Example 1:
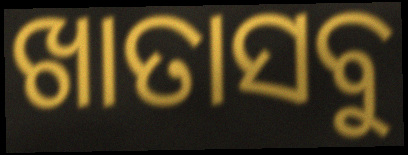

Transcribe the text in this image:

ଖାତାସବୁ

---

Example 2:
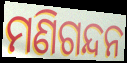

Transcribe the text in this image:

ମଣିଗନ୍ଦନ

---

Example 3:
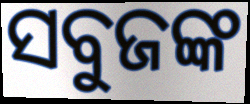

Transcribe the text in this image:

ସବୁଜଙ୍କ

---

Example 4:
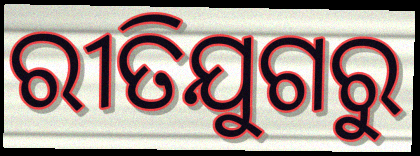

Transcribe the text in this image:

ରୀତିଯୁଗରୁ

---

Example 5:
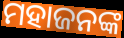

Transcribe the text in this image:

ମହାଜନଙ୍କ